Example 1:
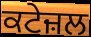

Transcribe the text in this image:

ਕਟੇਜ਼ਲ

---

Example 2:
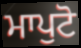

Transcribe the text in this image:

ਮਾਪੁਟੋ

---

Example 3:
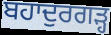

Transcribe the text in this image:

ਬਹਾਦੁਰਗੜ੍ਹ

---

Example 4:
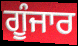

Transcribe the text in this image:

ਗੂੰਜਾਰ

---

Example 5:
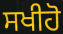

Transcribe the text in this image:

ਸਖੀਹੋ